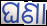
ଘଣା